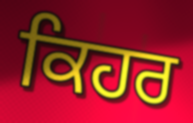
ਕਿਹਰ